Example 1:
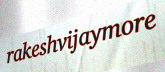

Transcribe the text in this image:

rakeshvijaymore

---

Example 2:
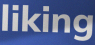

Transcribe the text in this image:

liking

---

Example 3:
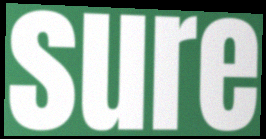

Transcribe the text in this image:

sure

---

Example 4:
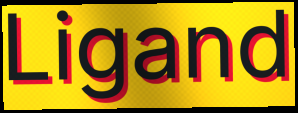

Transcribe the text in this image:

Ligand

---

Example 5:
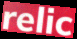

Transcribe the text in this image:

relic